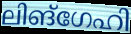
ലിങ്ഗേഹി